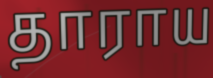
தாராய